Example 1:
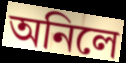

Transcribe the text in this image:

অনিলে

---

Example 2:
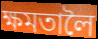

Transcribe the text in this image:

ক্ষমতালৈ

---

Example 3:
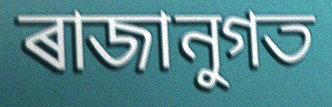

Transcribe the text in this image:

ৰাজানুগত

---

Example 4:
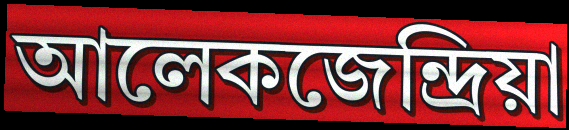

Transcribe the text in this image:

আলেকজেন্দ্ৰিয়া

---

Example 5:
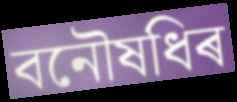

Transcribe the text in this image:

বনৌষধিৰ